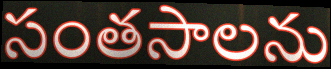
సంతసాలను